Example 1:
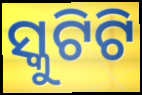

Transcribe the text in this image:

ସ୍କୁଟିଟି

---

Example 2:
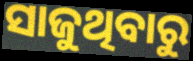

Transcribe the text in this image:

ସାଜୁଥିବାରୁ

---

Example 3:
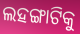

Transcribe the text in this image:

ଲହଙ୍ଗାଟିକୁ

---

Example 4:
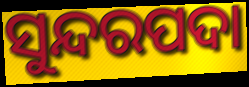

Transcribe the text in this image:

ସୁନ୍ଦରପଦା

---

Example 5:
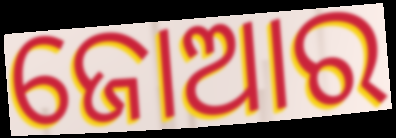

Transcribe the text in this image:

ଜୋଆର